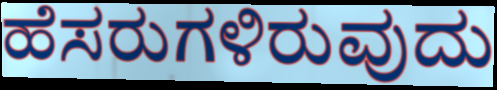
ಹೆಸರುಗಳಿರುವುದು